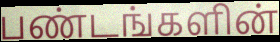
பண்டங்களின்